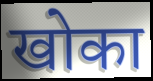
खोका